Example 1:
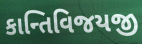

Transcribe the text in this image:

કાન્તિવિજયજી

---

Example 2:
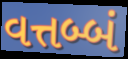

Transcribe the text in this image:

વત્તબ્બં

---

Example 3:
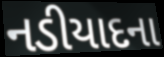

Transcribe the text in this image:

નડીયાદના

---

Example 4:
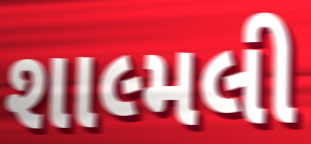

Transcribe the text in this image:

શાલ્મલી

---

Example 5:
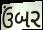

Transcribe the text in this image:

ઉંબર